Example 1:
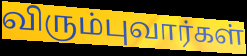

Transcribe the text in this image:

விரும்புவார்கள்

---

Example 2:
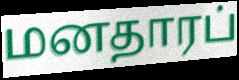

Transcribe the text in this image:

மனதாரப்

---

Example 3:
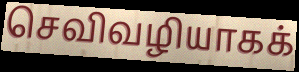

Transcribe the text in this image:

செவிவழியாகக்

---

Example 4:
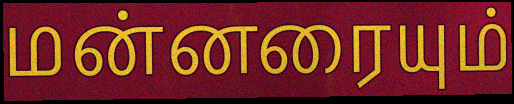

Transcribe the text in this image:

மன்னரையும்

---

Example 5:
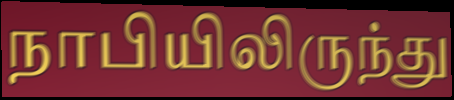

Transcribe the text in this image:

நாபியிலிருந்து